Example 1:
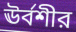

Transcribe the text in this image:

ঊর্বশীর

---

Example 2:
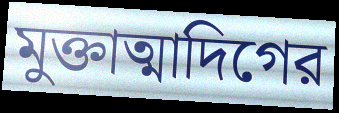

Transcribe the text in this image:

মুক্তাত্মাদিগের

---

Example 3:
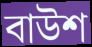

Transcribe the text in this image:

বাউশ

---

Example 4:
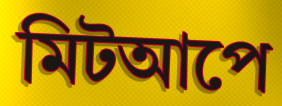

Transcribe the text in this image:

মিটআপে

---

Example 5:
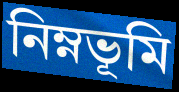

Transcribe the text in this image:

নিম্নভূমি